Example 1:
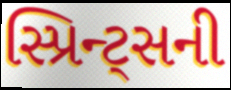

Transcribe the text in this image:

સ્પ્રિન્ટ્સની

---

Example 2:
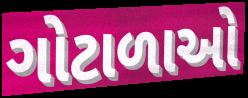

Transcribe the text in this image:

ગોટાળાઓ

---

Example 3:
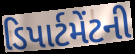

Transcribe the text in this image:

ડિપાર્ટમેંટની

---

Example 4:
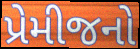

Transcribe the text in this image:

પ્રેમીજનો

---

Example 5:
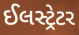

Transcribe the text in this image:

ઈલસ્ટ્રેટર